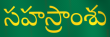
సహస్రాంశు